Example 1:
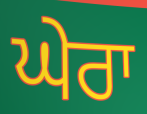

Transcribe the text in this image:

ਘੇਰਾ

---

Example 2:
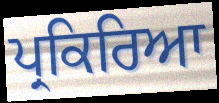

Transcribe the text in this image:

ਪ੍ਰਕਿਰਿਆ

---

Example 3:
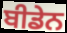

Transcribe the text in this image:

ਬੀਡੇਨ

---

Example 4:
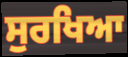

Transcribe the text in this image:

ਸੁਰਖਿਆ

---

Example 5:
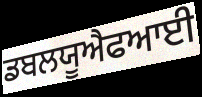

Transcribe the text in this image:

ਡਬਲਯੂਐਫਆਈ